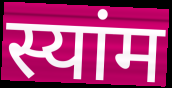
स्यांम